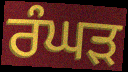
ਰੰਘੜ